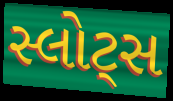
સ્લોટ્સ